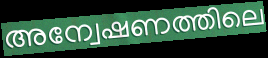
അന്വേഷണത്തിലെ